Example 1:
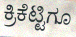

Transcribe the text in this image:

ಕ್ರಿಕೆಟ್ಟಿಗೂ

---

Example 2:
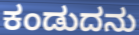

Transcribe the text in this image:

ಕಂಡುದನು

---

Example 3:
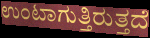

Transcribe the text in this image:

ಉಂಟಾಗುತ್ತಿರುತ್ತದೆ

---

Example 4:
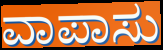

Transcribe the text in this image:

ವಾಪಾಸು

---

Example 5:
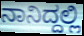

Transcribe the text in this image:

ನಾನಿದ್ದಲ್ಲಿ